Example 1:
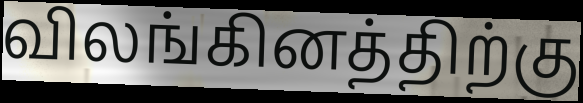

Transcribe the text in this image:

விலங்கினத்திற்கு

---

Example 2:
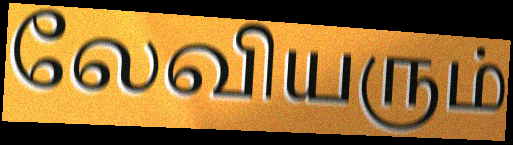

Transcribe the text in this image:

லேவியரும்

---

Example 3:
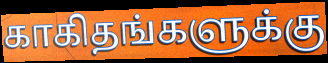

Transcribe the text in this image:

காகிதங்களுக்கு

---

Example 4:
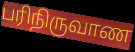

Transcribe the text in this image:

பரிநிருவாண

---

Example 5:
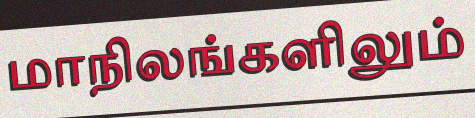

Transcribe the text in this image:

மாநிலங்களிலும்